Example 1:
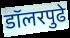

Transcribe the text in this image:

डॉलरपुढे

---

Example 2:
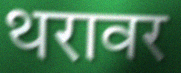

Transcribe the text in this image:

थरावर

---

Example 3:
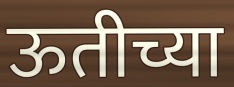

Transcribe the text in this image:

ऊतीच्या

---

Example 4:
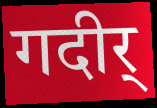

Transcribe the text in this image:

गदीर्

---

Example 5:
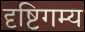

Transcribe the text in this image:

दृष्टिगम्य